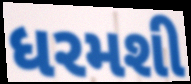
ધરમશી